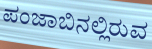
ಪಂಜಾಬಿನಲ್ಲಿರುವ